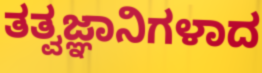
ತತ್ವಜ್ಞಾನಿಗಳಾದ